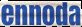
ennoda